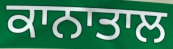
ਕਾਨਾਤਾਲ